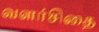
வளர்சிதை